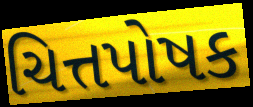
ચિત્તપોષક